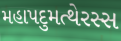
મહાપદુમત્થેરસ્સ